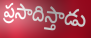
ప్రసాదిస్తాడు